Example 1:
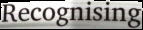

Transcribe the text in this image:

Recognising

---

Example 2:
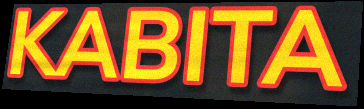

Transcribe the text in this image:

KABITA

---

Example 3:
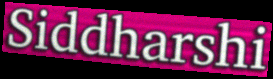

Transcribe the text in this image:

Siddharshi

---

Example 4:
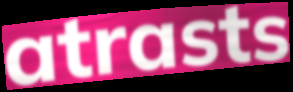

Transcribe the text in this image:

atrasts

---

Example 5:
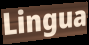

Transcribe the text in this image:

Lingua